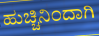
ಹುಚ್ಚಿನಿಂದಾಗಿ